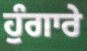
ਹੁੰਗਾਰੇ